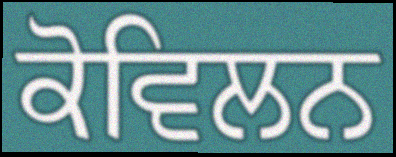
ਕੋਵਿਲਨ